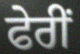
ਫੇਰੀਂ